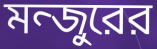
মন্জুরের